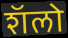
शॅलो